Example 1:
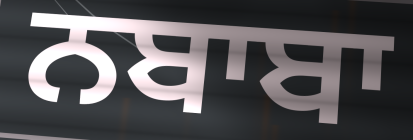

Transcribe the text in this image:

ਨਬਾਬਾ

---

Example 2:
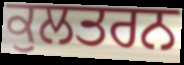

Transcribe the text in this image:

ਕੁਲਤਰਨ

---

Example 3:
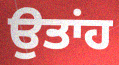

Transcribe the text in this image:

ਉਤਾਂਹ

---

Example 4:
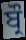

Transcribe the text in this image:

ਬ੍ਰੌ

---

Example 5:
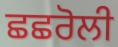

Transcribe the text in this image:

ਛਛਰੋਲੀ